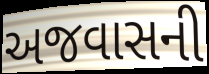
અજવાસની